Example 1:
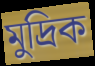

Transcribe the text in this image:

মুদ্রিক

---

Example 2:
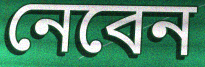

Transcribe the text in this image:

নেবেন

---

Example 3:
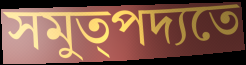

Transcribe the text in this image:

সমুত্পদ্যতে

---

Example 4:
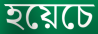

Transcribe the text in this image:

হয়েচে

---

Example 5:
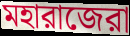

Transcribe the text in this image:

মহারাজেরা